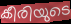
കീരിയുടെ